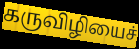
கருவிழியைச்